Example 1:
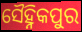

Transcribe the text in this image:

ସୈହ୍ନିକପୁର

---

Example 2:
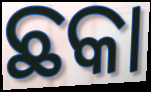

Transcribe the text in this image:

ଛକା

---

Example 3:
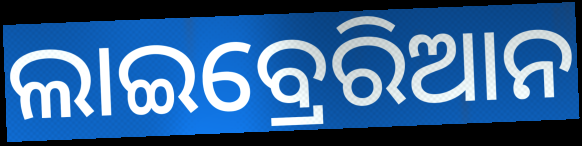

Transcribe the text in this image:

ଲାଇବ୍ରେରିଆନ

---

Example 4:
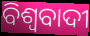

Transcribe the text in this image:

ବିଶ୍ବବାଦୀ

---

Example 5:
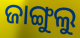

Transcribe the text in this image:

ଜାଙ୍ଗୁଲୁ